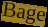
Bage